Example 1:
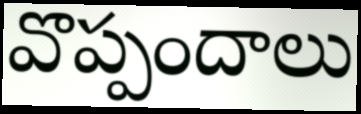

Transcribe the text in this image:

వొప్పందాలు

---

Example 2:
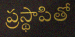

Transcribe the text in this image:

ప్రస్థాపితో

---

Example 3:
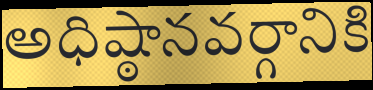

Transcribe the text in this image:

అధిష్ఠానవర్గానికి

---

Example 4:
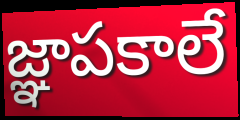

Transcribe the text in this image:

జ్ఞాపకాలే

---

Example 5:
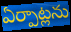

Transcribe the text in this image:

ఏర్పాట్లను